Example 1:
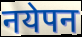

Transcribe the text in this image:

नयेपन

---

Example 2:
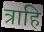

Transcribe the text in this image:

त्राहि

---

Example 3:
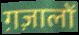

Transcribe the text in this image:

ग़ज़ालों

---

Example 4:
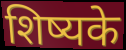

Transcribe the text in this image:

शिष्यके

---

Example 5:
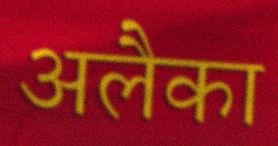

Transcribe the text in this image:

अलैका